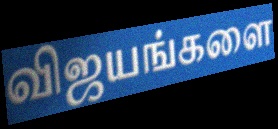
விஜயங்களை